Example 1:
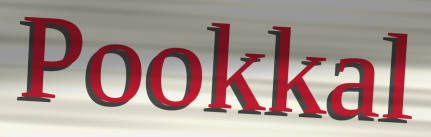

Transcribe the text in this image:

Pookkal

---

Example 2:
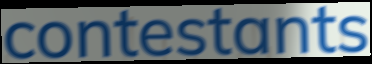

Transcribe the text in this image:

contestants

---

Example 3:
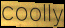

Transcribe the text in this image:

coolly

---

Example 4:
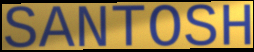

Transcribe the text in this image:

SANTOSH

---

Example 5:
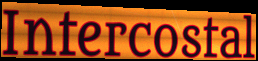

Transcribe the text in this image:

Intercostal